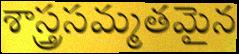
శాస్త్రసమ్మతమైన